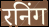
रनिंग